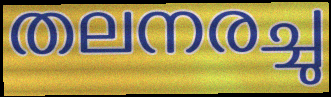
തലനരച്ചു